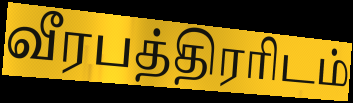
வீரபத்திரரிடம்